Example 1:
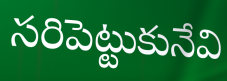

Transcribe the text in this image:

సరిపెట్టుకునేవి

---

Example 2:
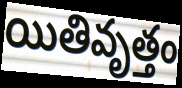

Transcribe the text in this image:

యితివృత్తం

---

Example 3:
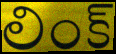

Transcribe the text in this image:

లింక్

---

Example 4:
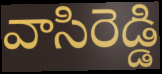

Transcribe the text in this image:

వాసిరెడ్డి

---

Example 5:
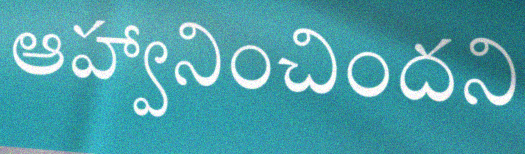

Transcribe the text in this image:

ఆహ్వానించిందని